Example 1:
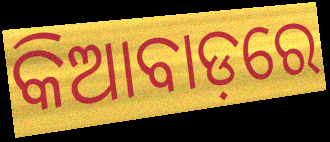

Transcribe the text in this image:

କିଆବାଡ଼ରେ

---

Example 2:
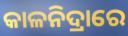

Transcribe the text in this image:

କାଳନିଦ୍ରାରେ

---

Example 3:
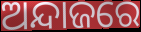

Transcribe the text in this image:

ଅନ୍ଦାଜରେ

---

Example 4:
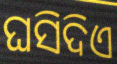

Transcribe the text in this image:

ଘସିଦିଏ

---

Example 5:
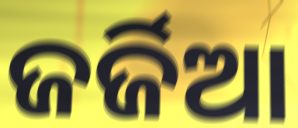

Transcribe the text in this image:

ଜର୍ଜିଆ